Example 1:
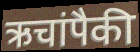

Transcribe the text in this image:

ऋचांपैकी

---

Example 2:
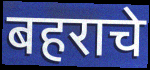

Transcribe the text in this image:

बहराचे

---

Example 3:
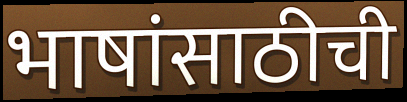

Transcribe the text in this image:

भाषांसाठीची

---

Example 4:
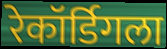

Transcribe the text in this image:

रेकॉर्डिगला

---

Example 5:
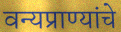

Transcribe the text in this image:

वन्यप्राण्यांचे